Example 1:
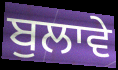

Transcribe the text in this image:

ਬੁਲਾਵੇ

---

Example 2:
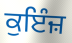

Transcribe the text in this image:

ਕੁਇੰਜ਼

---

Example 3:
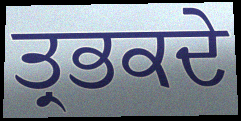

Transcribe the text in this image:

ਤ੍ਰਭਕਦੇ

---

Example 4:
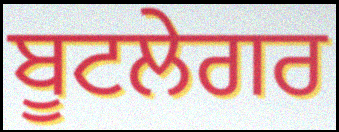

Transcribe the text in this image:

ਬੂਟਲੇਗਰ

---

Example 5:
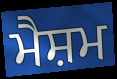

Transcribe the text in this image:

ਮੈਸ਼ਮ